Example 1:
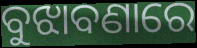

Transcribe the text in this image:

ବୁଝାବଣାରେ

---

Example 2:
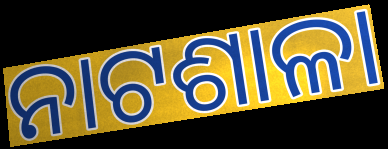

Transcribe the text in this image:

ନାଟଶାଳା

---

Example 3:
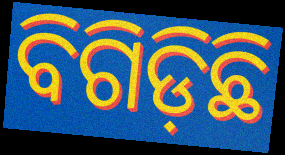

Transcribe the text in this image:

ବିଗିଡ଼ିଛି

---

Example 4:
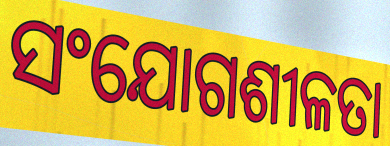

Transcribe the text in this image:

ସଂଯୋଗଶୀଳତା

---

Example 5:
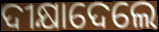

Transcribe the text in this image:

ଦୀକ୍ଷାଦେଲେ